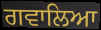
ਗਵਾਲਿਆ